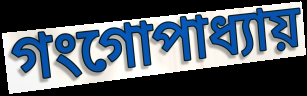
গংগোপাধ্যায়